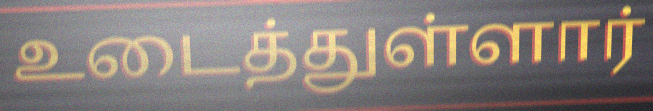
உடைத்துள்ளார்